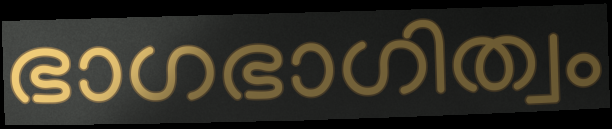
ഭാഗഭാഗിത്വം